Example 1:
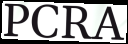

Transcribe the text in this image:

PCRA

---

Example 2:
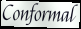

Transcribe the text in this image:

Conformal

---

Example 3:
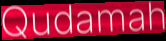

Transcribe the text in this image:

Qudamah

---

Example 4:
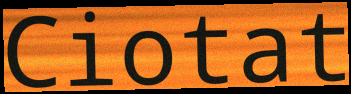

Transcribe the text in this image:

Ciotat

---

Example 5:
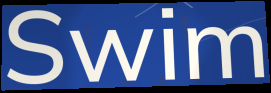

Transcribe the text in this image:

Swim